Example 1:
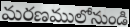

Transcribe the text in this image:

మరణములోనుండి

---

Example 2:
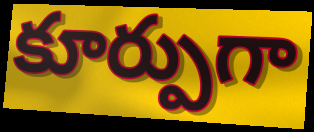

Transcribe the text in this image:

కూర్పుగా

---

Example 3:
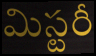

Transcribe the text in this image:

మిస్టరీ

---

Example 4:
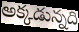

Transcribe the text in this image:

అక్కడున్నది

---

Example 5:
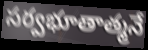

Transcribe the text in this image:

సర్వభూతాత్మనే